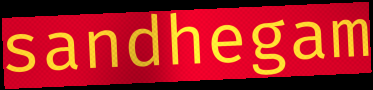
sandhegam